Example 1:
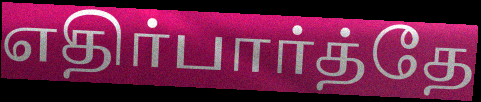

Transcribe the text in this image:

எதிர்பார்த்தே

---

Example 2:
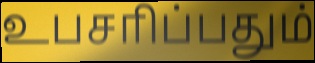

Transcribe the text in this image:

உபசரிப்பதும்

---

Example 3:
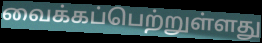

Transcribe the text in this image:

வைக்கப்பெற்றுள்ளது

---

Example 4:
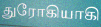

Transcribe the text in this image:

துரோகியாகி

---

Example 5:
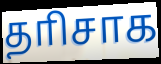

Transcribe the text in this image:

தரிசாக